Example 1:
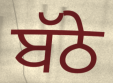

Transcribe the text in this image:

ਬੱਠੇ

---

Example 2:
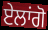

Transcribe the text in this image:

ਏਲਾਂਗੋ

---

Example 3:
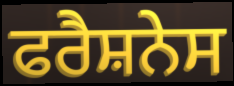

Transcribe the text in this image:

ਫਰੈਸ਼ਨੇਸ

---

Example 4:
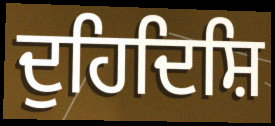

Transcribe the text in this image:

ਦੁਹਿਦਿਸ਼ਿ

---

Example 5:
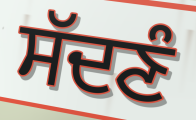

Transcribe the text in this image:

ਸੱਦਣੰ